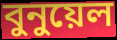
বুনুয়েল